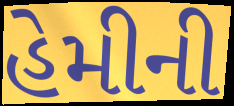
હેમીની